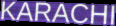
KARACHI